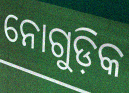
ନୋଗୁଡ଼ିକ